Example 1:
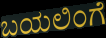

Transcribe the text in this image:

ಬಯಲಿಂಗೆ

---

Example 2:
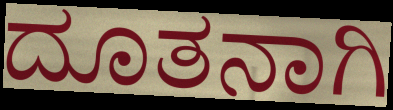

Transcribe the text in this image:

ದೂತನಾಗಿ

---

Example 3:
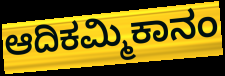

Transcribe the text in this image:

ಆದಿಕಮ್ಮಿಕಾನಂ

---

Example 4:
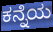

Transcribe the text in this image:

ಕನ್ನೆಯ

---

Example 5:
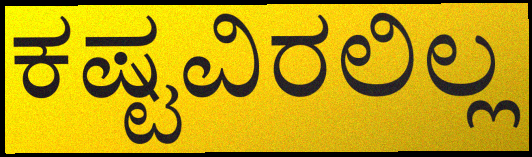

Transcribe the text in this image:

ಕಷ್ಟವಿರಲಿಲ್ಲ